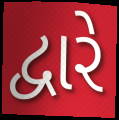
દ્વારે